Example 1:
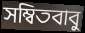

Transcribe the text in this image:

সম্বিতবাবু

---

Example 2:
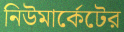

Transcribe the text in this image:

নিউমার্কেটের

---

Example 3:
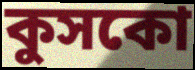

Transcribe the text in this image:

কুসকো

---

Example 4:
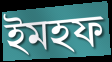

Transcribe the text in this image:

ইমহফ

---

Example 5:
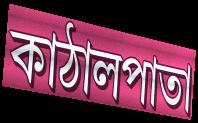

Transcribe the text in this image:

কাঠালপাতা